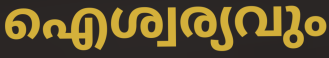
ഐശ്വര്യവും